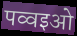
पव्वइओ